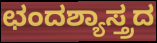
ಛಂದಶ್ಯಾಸ್ತ್ರದ